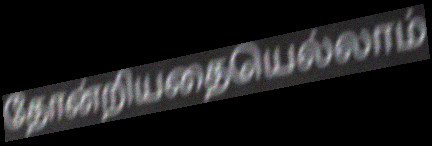
தோன்றியதையெல்லாம்